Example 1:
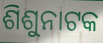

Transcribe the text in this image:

ଶିଶୁନାଟକ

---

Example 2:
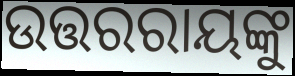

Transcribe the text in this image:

ଉତ୍ତରରାୟଙ୍କୁ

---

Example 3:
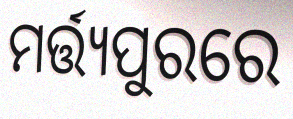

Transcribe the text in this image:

ମର୍ତ୍ତ୍ୟପୁରରେ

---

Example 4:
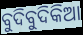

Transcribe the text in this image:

ବୁଦିବୁଦିକିଆ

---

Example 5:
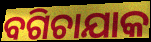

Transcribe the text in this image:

ବଗିଚାଯାକ